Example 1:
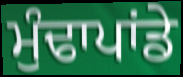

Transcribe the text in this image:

ਮੁੰਢਾਪਾਂਡੇ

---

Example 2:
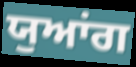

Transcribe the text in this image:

ਯੁਆਂਗ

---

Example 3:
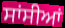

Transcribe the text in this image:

ਸਾਂਸੀਆਂ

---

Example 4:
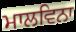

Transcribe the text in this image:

ਮਾਲਵਿਨਾ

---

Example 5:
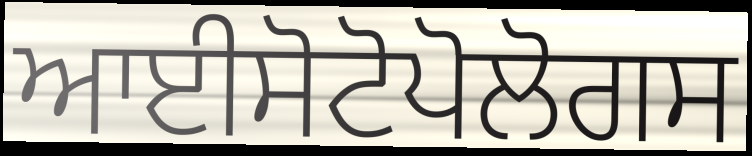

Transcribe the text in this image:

ਆਈਸੋਟੋਪੋਲੋਗਸ